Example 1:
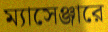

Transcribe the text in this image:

ম্যাসেঞ্জারে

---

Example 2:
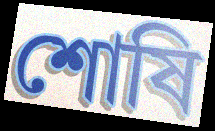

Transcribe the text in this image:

শোষি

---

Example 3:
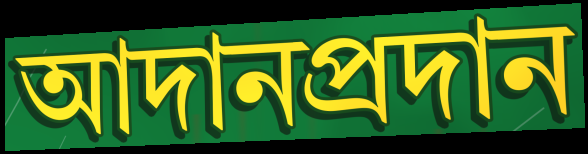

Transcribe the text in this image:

আদানপ্রদান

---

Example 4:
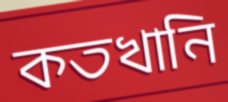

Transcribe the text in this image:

কতখানি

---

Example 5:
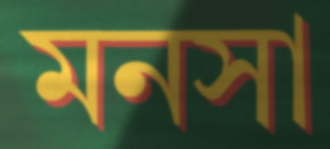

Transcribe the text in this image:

মনসা